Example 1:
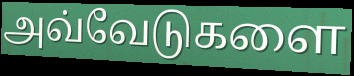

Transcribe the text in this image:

அவ்வேடுகளை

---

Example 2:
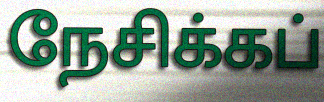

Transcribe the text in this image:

நேசிக்கப்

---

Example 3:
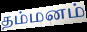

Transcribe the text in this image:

தம்மனம்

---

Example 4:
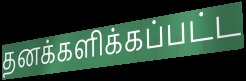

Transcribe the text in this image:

தனக்களிக்கப்பட்ட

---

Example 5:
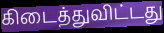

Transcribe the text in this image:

கிடைத்துவிட்டது